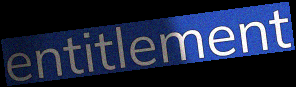
entitlement